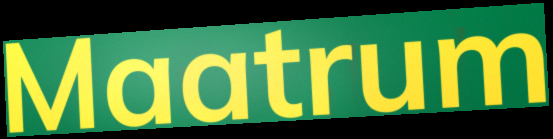
Maatrum